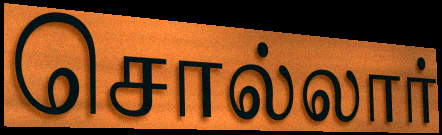
சொல்லார்